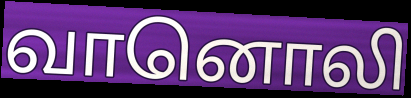
வானொலி